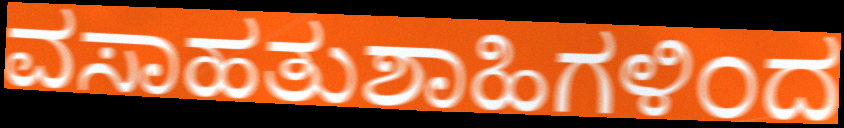
ವಸಾಹತುಶಾಹಿಗಳಿಂದ